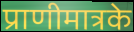
प्राणीमात्रके